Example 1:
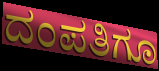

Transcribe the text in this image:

ದಂಪತಿಗೂ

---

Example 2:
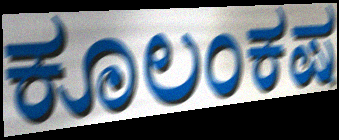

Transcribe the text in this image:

ಕೂಲಂಕಷ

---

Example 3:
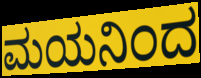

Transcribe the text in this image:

ಮಯನಿಂದ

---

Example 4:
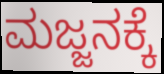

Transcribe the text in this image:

ಮಜ್ಜನಕ್ಕೆ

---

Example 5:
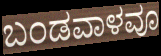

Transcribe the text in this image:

ಬಂಡವಾಳವೂ